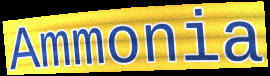
Ammonia